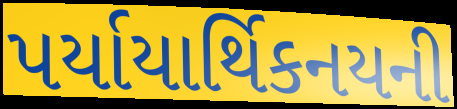
પર્યાયાર્થિકનયની